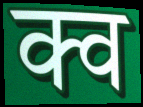
क्व